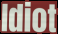
Idiot